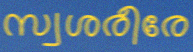
സ്വശരീരേ